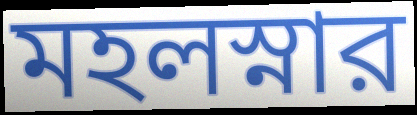
মহলস্নার